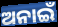
ଅନାଇଁ